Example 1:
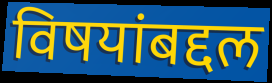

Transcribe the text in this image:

विषयांबद्दल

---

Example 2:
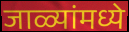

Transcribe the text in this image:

जाळ्यांमध्ये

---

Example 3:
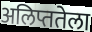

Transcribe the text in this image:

अलिप्ततेला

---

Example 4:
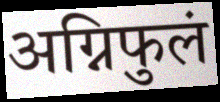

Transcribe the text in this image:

अग्निफुलं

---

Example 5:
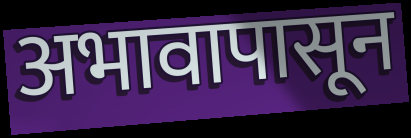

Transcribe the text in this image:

अभावापासून